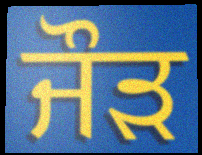
ਜੌੜ